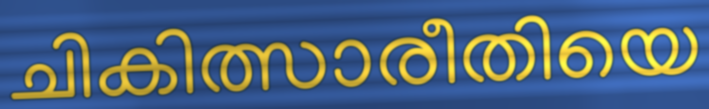
ചികിത്സാരീതിയെ